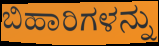
ಬಿಹಾರಿಗಳನ್ನು